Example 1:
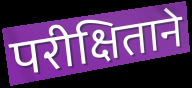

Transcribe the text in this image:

परीक्षिताने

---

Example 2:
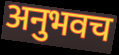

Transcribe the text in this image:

अनुभवच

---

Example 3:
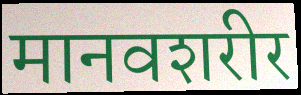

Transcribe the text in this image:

मानवशरीर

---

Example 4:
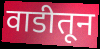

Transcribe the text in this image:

वाडीतून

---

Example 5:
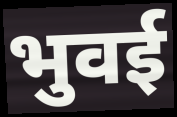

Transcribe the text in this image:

भुवई